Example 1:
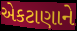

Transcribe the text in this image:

એકટાણાને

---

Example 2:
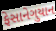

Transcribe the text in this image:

ફેસાનેગુયાન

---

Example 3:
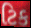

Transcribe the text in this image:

ટિક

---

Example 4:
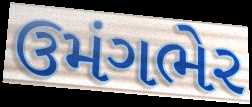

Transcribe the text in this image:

ઉમંગભેર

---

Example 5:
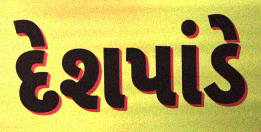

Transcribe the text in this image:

દેશપાંડે